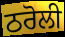
ਠਰੋਲੀ